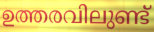
ഉത്തരവിലുണ്ട്